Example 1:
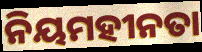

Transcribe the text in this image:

ନିୟମହୀନତା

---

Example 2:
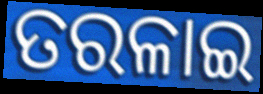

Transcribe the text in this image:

ତରଳାଇ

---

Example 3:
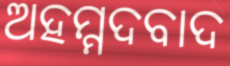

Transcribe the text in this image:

ଅହମ୍ମଦବାଦ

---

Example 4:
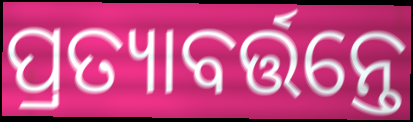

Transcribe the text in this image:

ପ୍ରତ୍ୟାବର୍ତ୍ତନ୍ତେ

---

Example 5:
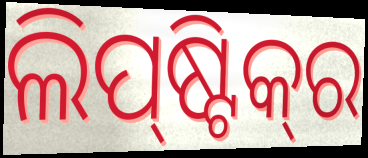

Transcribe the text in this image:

ଲିପ୍‌ଷ୍ଟିକ୍‌ର